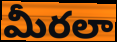
మీరలా